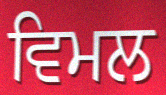
ਵਿਮਲ